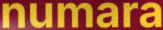
numara